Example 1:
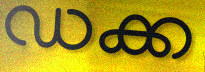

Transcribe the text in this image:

ഡക്ക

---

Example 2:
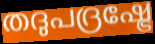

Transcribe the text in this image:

തദുപദ്രഷ്ട്രേ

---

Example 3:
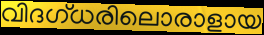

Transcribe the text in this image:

വിദഗ്ധരിലൊരാളായ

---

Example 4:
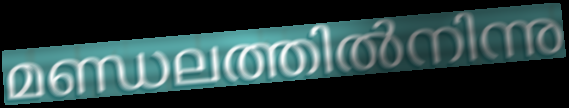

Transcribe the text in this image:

മണ്ഡലത്തിൽനിന്നു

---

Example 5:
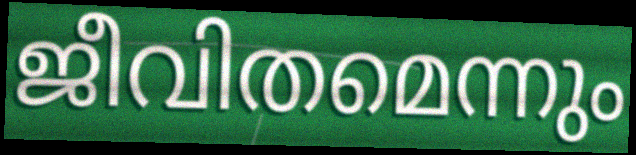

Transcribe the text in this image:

ജീവിതമെന്നും